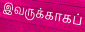
இவருக்காகப்